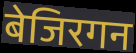
बेजिरगन